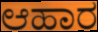
ಆಹಾರ